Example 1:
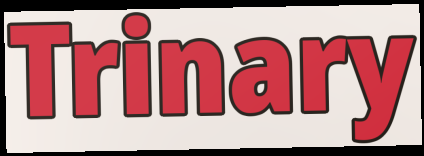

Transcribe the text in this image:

Trinary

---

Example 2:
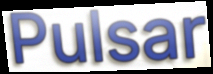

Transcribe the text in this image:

Pulsar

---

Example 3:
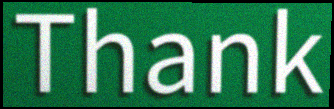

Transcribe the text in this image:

Thank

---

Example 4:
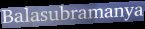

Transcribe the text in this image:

Balasubramanya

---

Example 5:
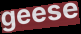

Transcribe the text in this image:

geese